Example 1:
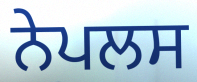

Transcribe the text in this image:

ਨੇਪਲਸ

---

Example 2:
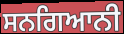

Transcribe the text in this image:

ਸਨਗਿਆਨੀ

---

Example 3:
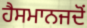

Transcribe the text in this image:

ਹੈਸਮਾਨਜਦੋਂ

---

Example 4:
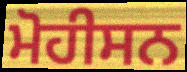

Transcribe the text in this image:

ਮੋਹੀਸਨ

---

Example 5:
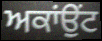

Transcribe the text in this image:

ਅਕਾਂਉਂਟ